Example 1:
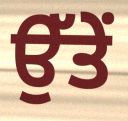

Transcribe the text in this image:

ਉੱਤੇਂ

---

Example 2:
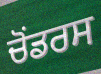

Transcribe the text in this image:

ਚੋਂਡਰਸ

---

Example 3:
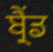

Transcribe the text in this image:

ਬ੍ਰੈਂਡ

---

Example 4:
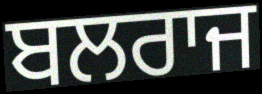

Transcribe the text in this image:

ਬਲਰਾਜ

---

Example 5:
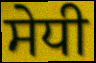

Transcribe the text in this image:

ਸੇਧੀ